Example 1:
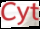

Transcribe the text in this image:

Cyt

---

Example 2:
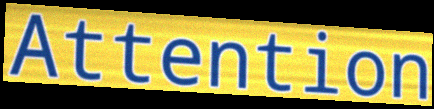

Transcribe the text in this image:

Attention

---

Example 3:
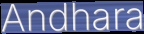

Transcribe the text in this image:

Andhara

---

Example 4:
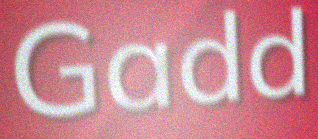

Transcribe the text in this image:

Gadd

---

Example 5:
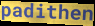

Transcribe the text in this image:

padithen